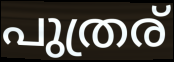
പുത്രര്